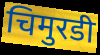
चिमुरडी